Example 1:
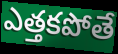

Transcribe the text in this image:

ఎత్తకపోతే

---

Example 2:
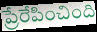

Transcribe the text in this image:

ప్రేరేపించింది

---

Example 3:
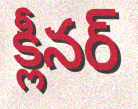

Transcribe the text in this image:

క్లీనర్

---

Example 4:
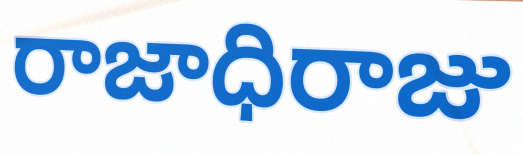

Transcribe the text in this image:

రాజాధిరాజు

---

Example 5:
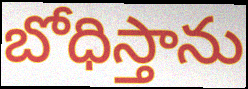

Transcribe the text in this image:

బోధిస్తాను